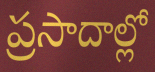
ప్రసాదాల్లో